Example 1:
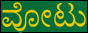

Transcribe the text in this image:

ವೋಟು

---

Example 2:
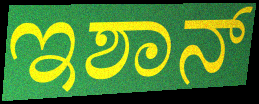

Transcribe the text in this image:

ಇಶಾನ್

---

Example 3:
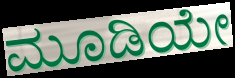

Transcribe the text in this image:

ಮೂಡಿಯೇ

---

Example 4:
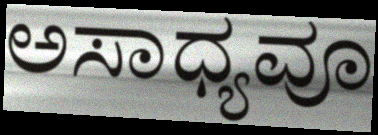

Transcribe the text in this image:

ಅಸಾಧ್ಯವೂ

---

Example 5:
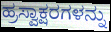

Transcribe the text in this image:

ಹ್ರಸ್ವಾಕ್ಷರಗಳನ್ನು